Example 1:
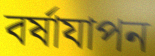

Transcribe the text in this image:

বর্ষাযাপন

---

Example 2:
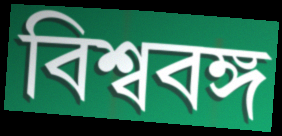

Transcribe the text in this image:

বিশ্ববঙ্গ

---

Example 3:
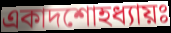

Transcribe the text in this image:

একাদশোহধ্যায়ঃ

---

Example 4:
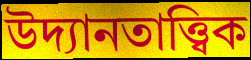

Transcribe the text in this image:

উদ্যানতাত্ত্বিক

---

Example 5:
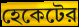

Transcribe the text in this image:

হেকেটের